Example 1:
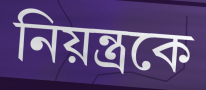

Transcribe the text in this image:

নিয়ন্ত্রকে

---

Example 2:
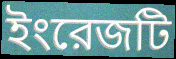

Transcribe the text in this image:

ইংরেজটি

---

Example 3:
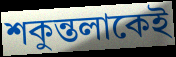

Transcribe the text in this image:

শকুন্তলাকেই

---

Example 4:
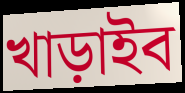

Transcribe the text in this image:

খাড়াইব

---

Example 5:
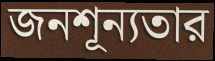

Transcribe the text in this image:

জনশূন্যতার